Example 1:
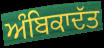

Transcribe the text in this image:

ਅੰਬਿਕਾਦੱਤ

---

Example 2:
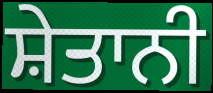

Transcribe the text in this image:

ਸ਼ੇਤਾਨੀ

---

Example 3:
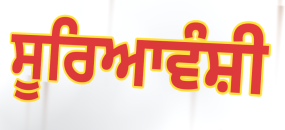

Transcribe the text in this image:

ਸੂਰਿਆਵੰਸ਼ੀ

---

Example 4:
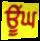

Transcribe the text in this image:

ਊਂਘ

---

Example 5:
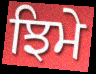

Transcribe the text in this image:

ਝਿਮੇ